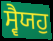
ਸ੍ਵੈਯਹੁ